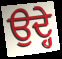
ਉਦ੍ਹੇ